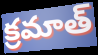
క్రమాత్